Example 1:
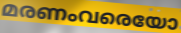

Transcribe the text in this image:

മരണംവരെയോ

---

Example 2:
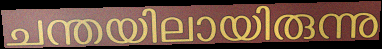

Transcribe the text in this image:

ചന്തയിലായിരുന്നു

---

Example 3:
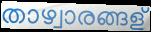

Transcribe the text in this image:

താഴ്വാരങ്ങള്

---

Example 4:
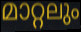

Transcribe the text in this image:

മാറ്റലും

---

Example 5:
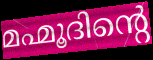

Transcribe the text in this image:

മഹ്മൂദിന്റെ